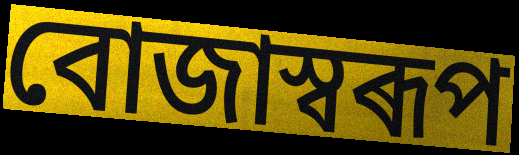
বোজাস্বৰূপ